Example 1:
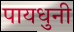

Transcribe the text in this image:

पायधुनी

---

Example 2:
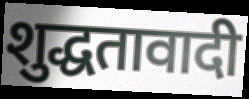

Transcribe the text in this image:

शुद्धतावादी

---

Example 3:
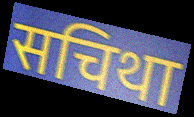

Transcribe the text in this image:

सचिथा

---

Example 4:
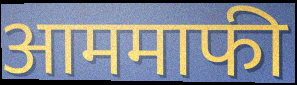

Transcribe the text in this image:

आममाफी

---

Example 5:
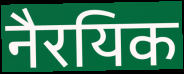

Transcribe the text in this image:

नैरयिक